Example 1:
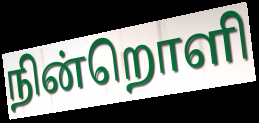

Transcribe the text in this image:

நின்றொளி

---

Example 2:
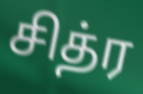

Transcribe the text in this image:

சித்ர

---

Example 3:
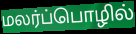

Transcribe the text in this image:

மலர்ப்பொழில்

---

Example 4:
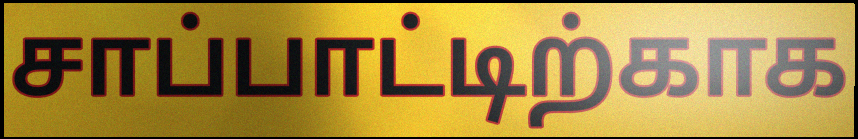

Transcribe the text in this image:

சாப்பாட்டிற்காக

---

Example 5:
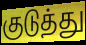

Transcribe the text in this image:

குடுத்து